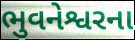
ભુવનેશ્વરના